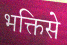
भक्तिसे